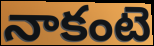
నాకంటె